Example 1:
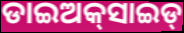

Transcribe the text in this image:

ଡାଇଅକ୍‌ସାଇଡ୍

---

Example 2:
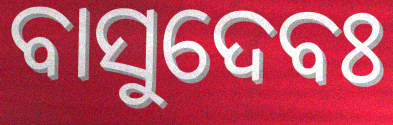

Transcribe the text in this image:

ବାସୁଦେବଃ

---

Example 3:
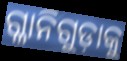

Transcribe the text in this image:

ଗ୍ଳାନିଗୁଡ଼ାକୁ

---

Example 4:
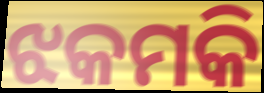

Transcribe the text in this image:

ଝକମକି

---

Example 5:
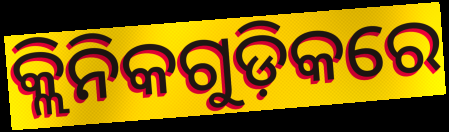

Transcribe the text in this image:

କ୍ଲିନିକଗୁଡ଼ିକରେ